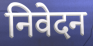
निवेदन